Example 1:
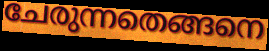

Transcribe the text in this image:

ചേരുന്നതെങ്ങനെ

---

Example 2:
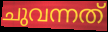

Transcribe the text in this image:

ചുവന്നത്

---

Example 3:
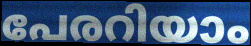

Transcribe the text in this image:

പേരറിയാം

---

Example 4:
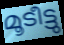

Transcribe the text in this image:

മൂടീട്ടു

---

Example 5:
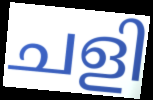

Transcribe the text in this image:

ചളി